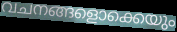
വചനങ്ങളൊക്കെയും